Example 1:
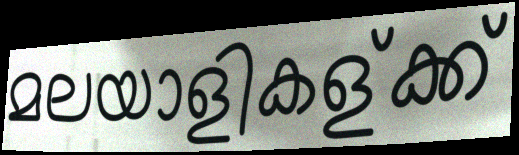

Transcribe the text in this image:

മലയാളികള്ക്ക്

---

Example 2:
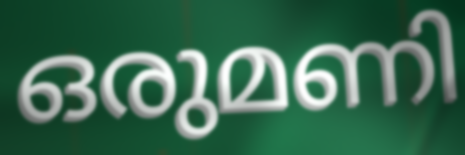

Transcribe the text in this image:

ഒരുമണി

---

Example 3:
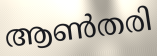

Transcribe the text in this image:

ആൺതരി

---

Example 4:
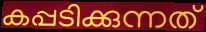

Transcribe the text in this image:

കപ്പടിക്കുന്നത്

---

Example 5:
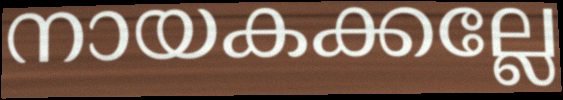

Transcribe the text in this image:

നായകക്കല്ലേ